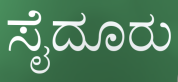
ಸೈದೂರು